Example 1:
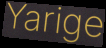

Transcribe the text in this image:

Yarige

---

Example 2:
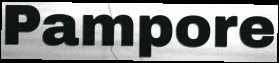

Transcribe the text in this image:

Pampore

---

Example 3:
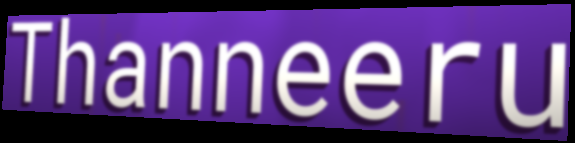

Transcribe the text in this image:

Thanneeru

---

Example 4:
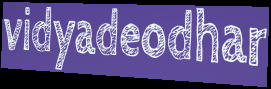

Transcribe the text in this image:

vidyadeodhar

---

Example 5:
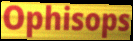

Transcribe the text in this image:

Ophisops